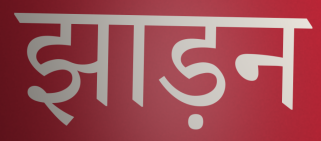
झाड़न